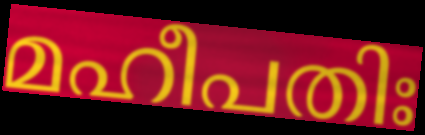
മഹീപതിഃ